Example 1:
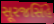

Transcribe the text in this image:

સૂરજસિંહે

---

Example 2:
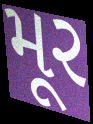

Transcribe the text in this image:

મૂર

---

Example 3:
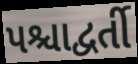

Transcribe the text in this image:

પશ્ચાદ્વર્તી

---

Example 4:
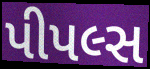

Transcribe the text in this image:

પીપલ્સ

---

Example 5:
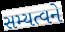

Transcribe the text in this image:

સમ્યત્વને